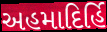
અહમાદિર્હિ